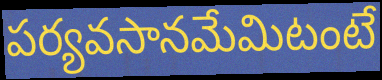
పర్యవసానమేమిటంటే